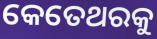
କେତେଥରକୁ